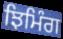
ਝਿਮਿੰਗ